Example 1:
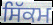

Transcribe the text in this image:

ਸਿੱਕਮ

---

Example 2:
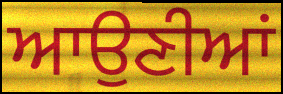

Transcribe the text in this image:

ਆਉਣੀਆਂ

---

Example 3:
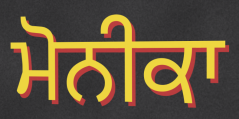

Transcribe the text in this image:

ਮੋਨੀਕਾ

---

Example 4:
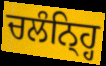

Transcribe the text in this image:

ਚਲੰਨ੍ਹ੍ਹਿ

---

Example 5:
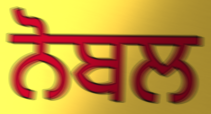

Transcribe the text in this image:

ਨੋਬਲ